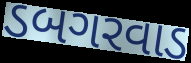
ડબગરવાડ